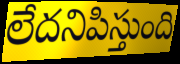
లేదనిపిస్తుంది